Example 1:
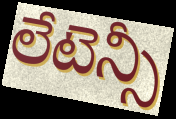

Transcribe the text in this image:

లేటెన్సీ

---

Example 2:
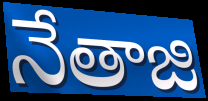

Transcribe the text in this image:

నేతాజి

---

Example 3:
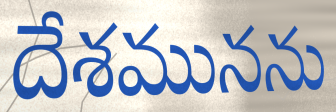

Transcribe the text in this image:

దేశమునను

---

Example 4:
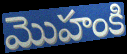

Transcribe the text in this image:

మొహంకి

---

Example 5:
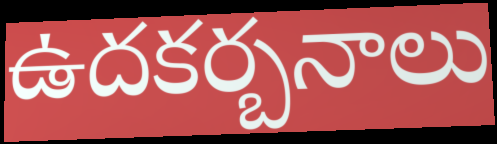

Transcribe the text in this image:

ఉదకర్బనాలు